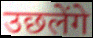
उछलेंगे